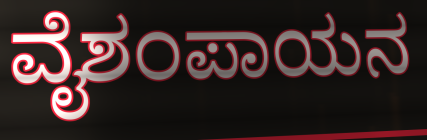
ವೈಶಂಪಾಯನ